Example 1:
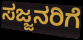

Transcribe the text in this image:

ಸಜ್ಜನರಿಗೆ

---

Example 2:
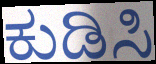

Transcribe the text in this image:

ಕುಡಿಸಿ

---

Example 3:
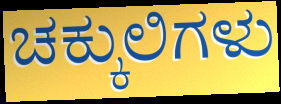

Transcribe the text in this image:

ಚಕ್ಕುಲಿಗಳು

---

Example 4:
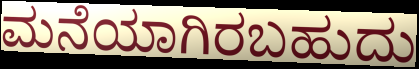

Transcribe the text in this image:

ಮನೆಯಾಗಿರಬಹುದು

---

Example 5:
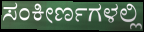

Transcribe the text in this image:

ಸಂಕೀರ್ಣಗಳಲ್ಲಿ